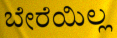
ಬೇರೆಯಿಲ್ಲ